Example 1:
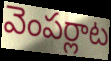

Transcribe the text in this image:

వెంపర్లాట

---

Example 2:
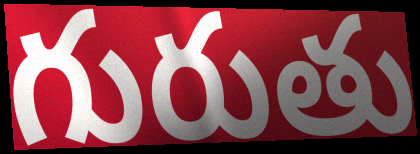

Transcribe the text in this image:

గురుతు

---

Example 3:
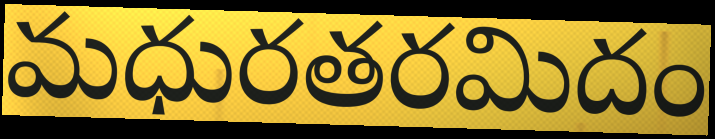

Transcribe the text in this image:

మధురతరమిదం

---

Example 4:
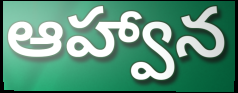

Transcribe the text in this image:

ఆహ్వాన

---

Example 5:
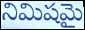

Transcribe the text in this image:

నిమిషమై